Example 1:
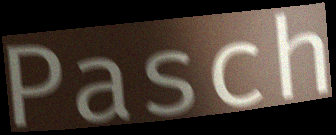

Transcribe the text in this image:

Pasch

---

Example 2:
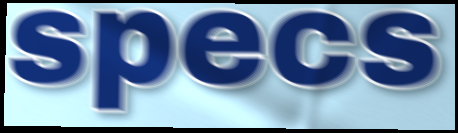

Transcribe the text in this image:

specs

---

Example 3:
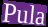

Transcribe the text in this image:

Pula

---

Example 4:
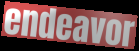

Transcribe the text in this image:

endeavor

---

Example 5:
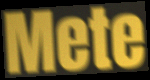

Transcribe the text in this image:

Mete